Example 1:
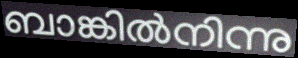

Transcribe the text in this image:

ബാങ്കിൽനിന്നു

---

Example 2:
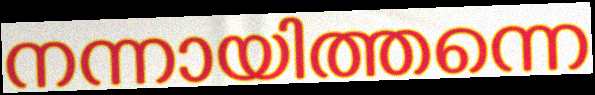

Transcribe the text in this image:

നന്നായിത്തന്നെ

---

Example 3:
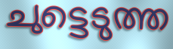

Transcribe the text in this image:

ചുട്ടെടുത്ത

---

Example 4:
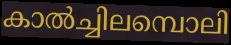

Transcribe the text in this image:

കാൽച്ചിലമ്പൊലി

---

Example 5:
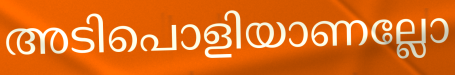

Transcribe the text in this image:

അടിപൊളിയാണല്ലോ